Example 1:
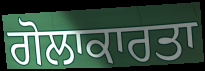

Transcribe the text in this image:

ਗੋਲਾਕਾਰਤਾ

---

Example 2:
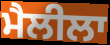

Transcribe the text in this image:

ਮੈਲੀਲਾ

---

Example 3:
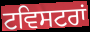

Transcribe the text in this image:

ਟਵਿਸਟਰਾਂ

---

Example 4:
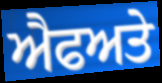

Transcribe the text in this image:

ਐਫਅਤੇ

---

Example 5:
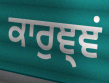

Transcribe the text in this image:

ਕਾਰੁਞ੍ਞਂ